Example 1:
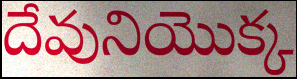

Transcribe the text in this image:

దేవునియొక్క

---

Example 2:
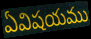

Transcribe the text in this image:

ఏవిషయము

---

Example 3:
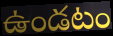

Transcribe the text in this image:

ఉండటం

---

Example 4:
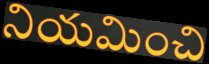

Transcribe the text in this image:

నియమించి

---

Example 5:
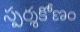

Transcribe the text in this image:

స్పర్శకోణం